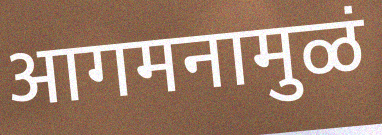
आगमनामुळं